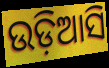
ଉଡ଼ିଆସି